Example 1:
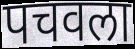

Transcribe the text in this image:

पचवला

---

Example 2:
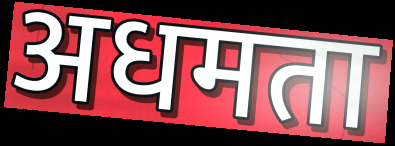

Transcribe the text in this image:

अधमता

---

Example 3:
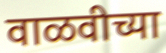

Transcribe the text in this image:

वाळवीच्या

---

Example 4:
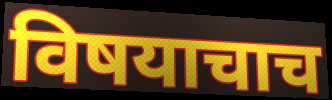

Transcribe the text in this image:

विषयाचाच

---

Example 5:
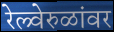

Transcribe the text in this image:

रेल्वेरुळांवर